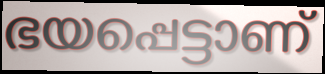
ഭയപ്പെട്ടാണ്